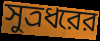
সুত্রধরের